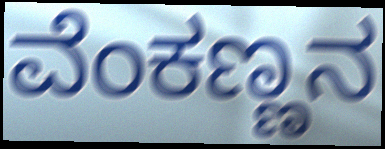
ವೆಂಕಣ್ಣನ